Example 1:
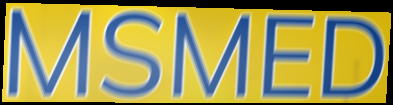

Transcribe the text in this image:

MSMED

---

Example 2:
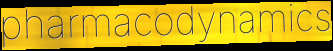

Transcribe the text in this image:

pharmacodynamics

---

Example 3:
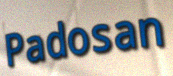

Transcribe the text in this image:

Padosan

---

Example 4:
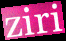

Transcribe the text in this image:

ziri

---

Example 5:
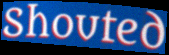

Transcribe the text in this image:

Shouted